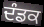
ਦੰਡਕ